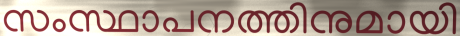
സംസ്ഥാപനത്തിനുമായി